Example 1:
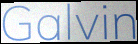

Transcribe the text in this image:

Galvin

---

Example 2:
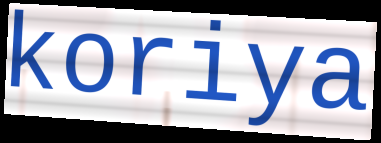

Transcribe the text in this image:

koriya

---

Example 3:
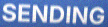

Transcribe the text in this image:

SENDING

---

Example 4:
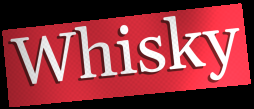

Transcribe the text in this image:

Whisky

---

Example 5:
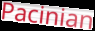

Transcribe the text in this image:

Pacinian